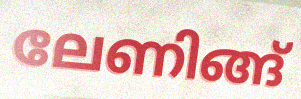
ലേണിങ്ങ്